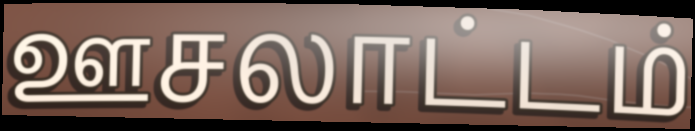
ஊசலாட்டம்